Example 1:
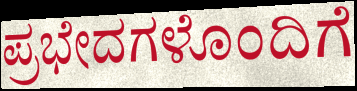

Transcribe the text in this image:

ಪ್ರಭೇದಗಳೊಂದಿಗೆ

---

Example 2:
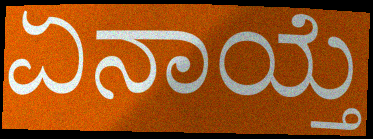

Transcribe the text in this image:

ಏನಾಯ್ತೆ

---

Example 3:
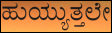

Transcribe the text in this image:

ಹುಯ್ಯುತ್ತಲೇ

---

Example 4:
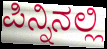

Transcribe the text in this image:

ಪಿನ್ನಿನಲ್ಲಿ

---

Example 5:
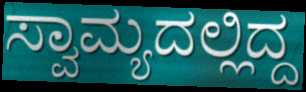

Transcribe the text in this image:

ಸ್ವಾಮ್ಯದಲ್ಲಿದ್ದ